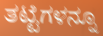
ತಟ್ಟೆಗಳನ್ನೂ